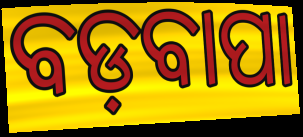
ବଡ଼ବାପା